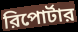
রিপোর্টার